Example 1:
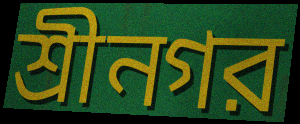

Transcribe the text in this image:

শ্রীনগর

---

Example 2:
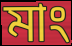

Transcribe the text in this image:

মাং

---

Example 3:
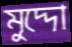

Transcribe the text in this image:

মুদ্দো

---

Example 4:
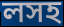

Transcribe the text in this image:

লসহ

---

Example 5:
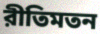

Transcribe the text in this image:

রীতিমতন